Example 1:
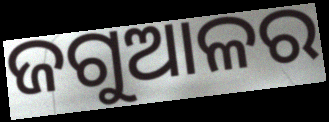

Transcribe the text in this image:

ଜଗୁଆଳର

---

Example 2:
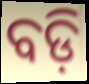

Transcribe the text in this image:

ବଡ଼ି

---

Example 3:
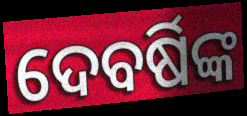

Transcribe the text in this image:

ଦେବର୍ଷିଙ୍କ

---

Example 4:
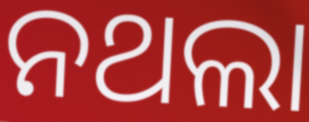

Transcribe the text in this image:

ନଥଲା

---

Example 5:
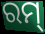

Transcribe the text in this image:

ରମ୍